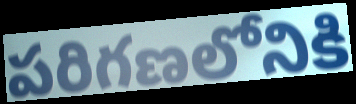
పరిగణలోనికి